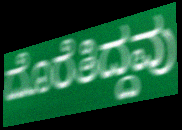
ದೊರೆತಿದ್ದವು